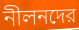
নীলনদের